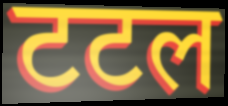
टटल